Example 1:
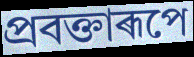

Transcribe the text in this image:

প্ৰবক্তাৰূপে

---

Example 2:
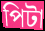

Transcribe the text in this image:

পিটা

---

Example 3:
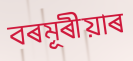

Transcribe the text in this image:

বৰমূৰীয়াৰ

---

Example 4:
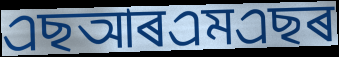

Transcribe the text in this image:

এছআৰএমএছৰ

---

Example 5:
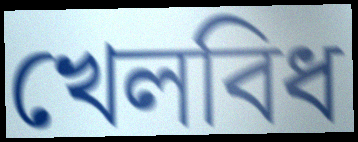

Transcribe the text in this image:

খেলবিধ